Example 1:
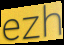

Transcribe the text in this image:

ezh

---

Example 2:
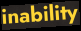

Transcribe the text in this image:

inability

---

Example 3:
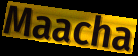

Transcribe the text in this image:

Maacha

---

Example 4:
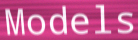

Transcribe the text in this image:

Models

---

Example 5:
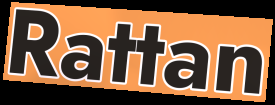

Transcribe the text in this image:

Rattan